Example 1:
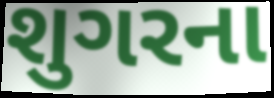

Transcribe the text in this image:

શુગરના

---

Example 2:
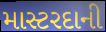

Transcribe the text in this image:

માસ્ટરદાની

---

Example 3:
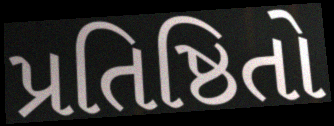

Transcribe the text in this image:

પ્રતિષ્ઠિતો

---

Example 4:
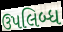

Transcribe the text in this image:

ઉપલિબ્ધ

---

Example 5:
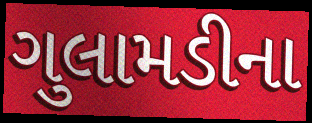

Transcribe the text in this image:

ગુલામડીના